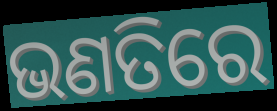
ଭଣତିରେ